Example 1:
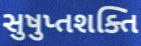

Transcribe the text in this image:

સુષુપ્તશક્તિ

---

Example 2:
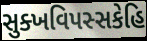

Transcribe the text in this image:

સુક્ખવિપસ્સકેહિ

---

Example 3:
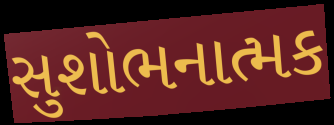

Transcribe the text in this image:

સુશોભનાત્મક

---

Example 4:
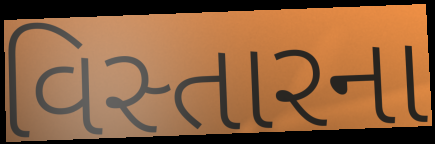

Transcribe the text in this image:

વિસ્તારના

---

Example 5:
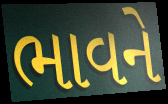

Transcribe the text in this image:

ભાવને